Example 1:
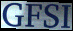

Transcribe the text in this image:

GFSI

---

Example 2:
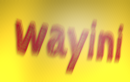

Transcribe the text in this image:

wayini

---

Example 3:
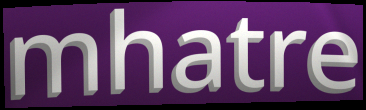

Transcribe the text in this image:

mhatre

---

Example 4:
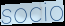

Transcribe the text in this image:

socio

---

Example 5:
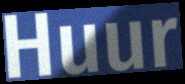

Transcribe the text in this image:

Huur